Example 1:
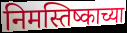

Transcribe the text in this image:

निमस्तिष्काच्या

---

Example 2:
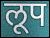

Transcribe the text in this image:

लूप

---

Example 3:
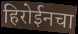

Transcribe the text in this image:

हिरोईनचा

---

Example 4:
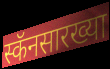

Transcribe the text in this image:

स्कॅनसारख्या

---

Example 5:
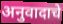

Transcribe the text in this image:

अनुवादाचे